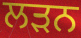
ਲਡ਼ਨ